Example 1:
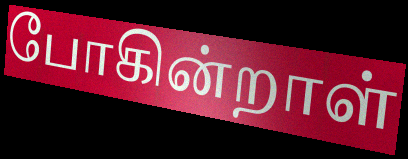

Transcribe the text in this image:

போகின்றாள்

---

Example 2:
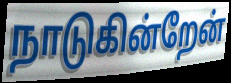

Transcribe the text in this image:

நாடுகின்றேன்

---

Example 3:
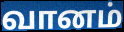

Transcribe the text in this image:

வானம்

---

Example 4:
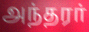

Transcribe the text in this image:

அந்தரர்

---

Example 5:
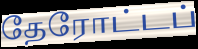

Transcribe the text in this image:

தேரோட்டப்